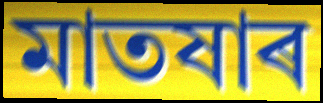
মাতষাৰ